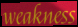
weakness